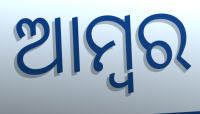
ଆମ୍ବର